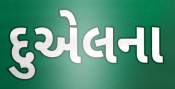
દુએલના